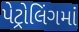
પેટ્રોલિંગમાં